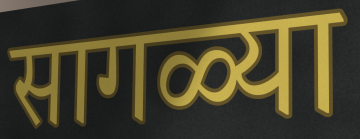
सागळ्या